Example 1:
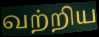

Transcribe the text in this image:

வற்றிய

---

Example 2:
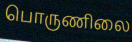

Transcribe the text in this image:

பொருணிலை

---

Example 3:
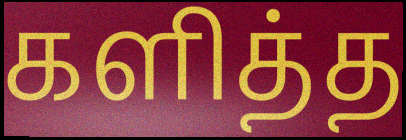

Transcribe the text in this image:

களித்த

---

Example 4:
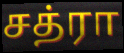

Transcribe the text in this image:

சத்ரா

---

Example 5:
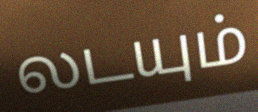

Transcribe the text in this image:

லடயும்